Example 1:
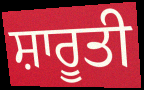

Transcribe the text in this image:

ਸ਼ਾਰੂਤੀ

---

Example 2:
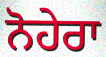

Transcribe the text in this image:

ਨੋਹੇਰਾ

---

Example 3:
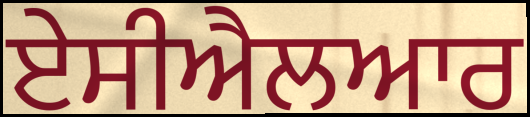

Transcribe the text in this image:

ਏਸੀਐਲਆਰ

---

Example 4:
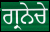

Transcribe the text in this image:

ਗ੍ਰਨੇਚੇ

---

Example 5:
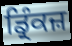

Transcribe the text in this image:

ਡ੍ਰਿੰਕਜ਼